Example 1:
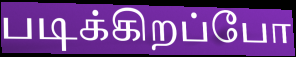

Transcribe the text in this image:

படிக்கிறப்போ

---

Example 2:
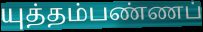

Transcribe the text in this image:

யுத்தம்பண்ணப்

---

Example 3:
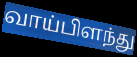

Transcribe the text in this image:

வாய்பிளந்து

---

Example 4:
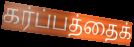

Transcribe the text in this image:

கர்ப்பத்தைக்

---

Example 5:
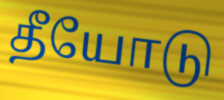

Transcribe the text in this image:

தீயோடு